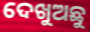
ଦେଖୁଅଛୁ